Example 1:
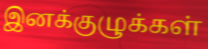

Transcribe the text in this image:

இனக்குழுக்கள்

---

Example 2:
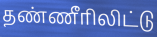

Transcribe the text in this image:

தண்ணீரிலிட்டு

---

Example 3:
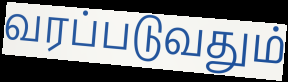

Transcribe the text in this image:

வரப்படுவதும்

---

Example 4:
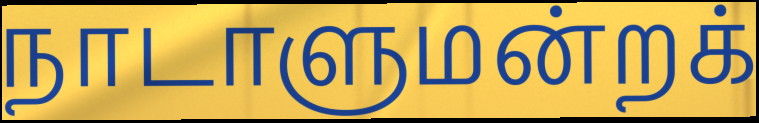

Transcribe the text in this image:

நாடாளுமன்றக்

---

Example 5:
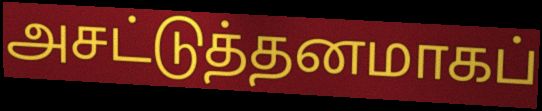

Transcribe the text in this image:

அசட்டுத்தனமாகப்